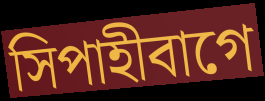
সিপাহীবাগে